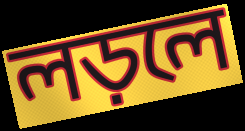
লড়লে